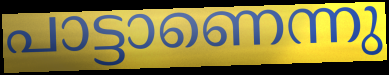
പാട്ടാണെന്നു